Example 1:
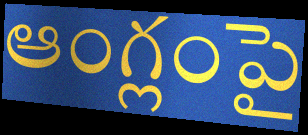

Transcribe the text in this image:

ఆంగ్లంపై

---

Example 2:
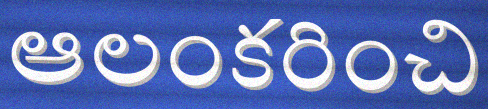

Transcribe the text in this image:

ఆలంకరించి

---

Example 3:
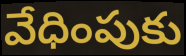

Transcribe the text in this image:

వేధింపుకు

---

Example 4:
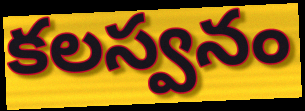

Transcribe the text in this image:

కలస్వనం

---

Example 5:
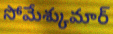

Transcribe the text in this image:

సోమేశ్కుమార్